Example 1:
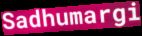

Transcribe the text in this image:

Sadhumargi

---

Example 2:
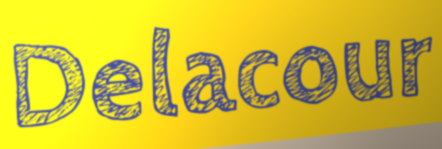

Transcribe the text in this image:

Delacour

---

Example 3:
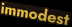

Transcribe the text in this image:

immodest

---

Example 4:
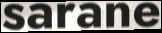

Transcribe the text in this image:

sarane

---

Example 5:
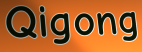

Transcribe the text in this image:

Qigong